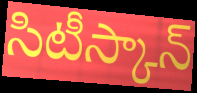
సిటీస్కాన్